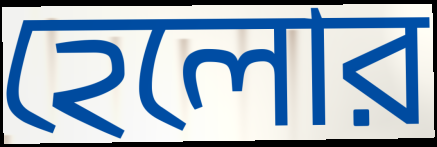
হেলোর